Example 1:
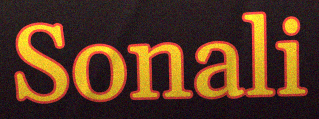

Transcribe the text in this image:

Sonali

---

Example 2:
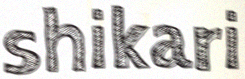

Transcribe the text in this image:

shikari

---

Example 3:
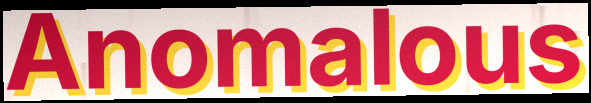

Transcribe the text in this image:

Anomalous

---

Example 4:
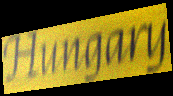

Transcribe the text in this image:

Hungary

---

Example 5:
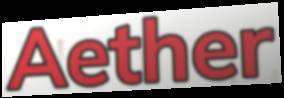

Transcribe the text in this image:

Aether